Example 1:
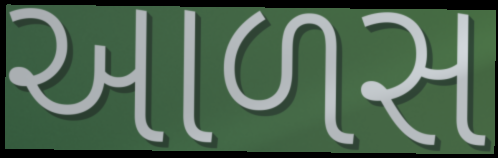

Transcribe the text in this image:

આળસ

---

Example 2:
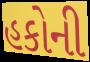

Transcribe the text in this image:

હકોની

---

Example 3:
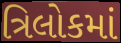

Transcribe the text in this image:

ત્રિલોકમાં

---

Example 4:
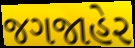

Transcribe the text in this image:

જગજાહેર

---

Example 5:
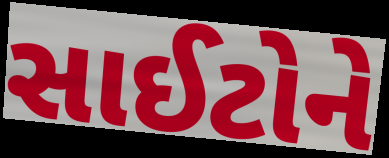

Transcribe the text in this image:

સાઈટોને